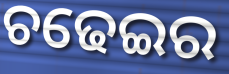
ଚଢେଇର